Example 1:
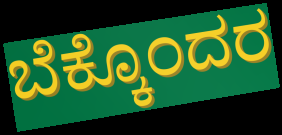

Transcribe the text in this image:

ಬೆಕ್ಕೊಂದರ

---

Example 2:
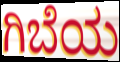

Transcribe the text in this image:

ಗಿಬೆಯ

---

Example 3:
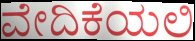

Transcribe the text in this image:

ವೇದಿಕೆಯಲಿ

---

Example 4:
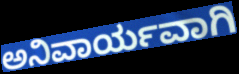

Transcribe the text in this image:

ಅನಿವಾರ್ಯವಾಗಿ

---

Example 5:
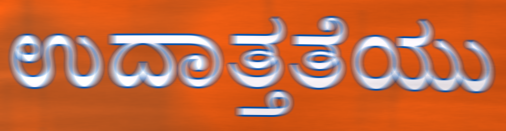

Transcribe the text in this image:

ಉದಾತ್ತತೆಯು